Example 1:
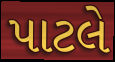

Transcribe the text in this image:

પાટલે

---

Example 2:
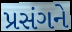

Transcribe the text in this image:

પ્રસંગને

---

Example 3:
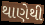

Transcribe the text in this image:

થાણેથી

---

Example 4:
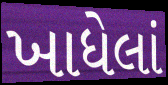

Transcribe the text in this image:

ખાધેલાં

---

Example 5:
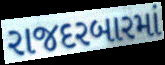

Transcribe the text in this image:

રાજદરબારમાં